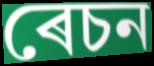
ৰেচন